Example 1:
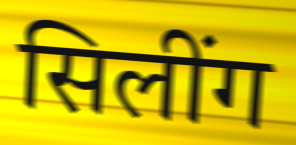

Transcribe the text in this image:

सिलींग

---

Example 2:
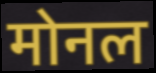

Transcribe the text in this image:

मोनल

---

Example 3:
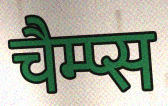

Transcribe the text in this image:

चैम्प्स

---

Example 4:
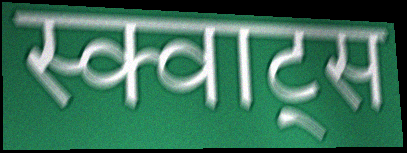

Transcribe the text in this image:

स्क्वाट्स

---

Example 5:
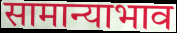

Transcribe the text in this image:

सामान्याभाव